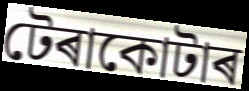
টেৰাকোটাৰ